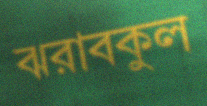
ঝরাবকুল